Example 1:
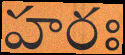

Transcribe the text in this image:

హరః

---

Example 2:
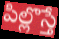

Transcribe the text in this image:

పిల్లొస్తే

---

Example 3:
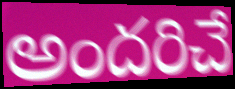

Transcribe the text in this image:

అందరిచే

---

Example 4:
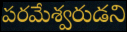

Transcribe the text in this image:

పరమేశ్వరుడని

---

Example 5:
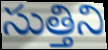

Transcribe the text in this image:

సుత్తిని